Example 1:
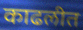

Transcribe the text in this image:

काढलीत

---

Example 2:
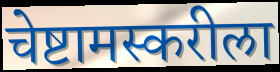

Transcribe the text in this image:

चेष्टामस्करीला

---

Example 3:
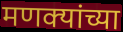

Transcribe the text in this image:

मणक्यांच्या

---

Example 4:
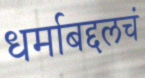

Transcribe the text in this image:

धर्माबद्दलचं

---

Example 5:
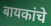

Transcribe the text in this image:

बायकांचे